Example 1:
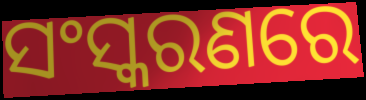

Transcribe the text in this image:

ସଂସ୍କରଣରେ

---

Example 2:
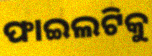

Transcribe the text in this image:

ଫାଇଲଟିକୁ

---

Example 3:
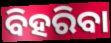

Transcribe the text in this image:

ବିହରିବା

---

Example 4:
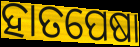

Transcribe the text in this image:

ହାତପେଷା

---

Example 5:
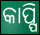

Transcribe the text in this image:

କାପ୍ପି